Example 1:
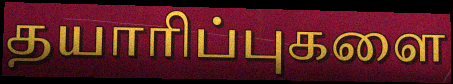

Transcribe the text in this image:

தயாரிப்புகளை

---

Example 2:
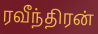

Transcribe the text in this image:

ரவீந்திரன்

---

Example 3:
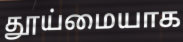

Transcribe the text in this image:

தூய்மையாக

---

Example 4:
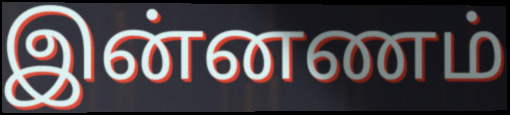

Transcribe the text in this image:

இன்னணம்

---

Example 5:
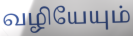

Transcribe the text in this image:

வழியேயும்